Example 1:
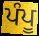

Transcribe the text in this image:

ਪੰਪੂ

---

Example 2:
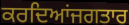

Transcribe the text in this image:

ਕਰਦਿਆਂਜਗਤਾਰ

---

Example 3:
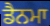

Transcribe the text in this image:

ਡੈਨਮਾ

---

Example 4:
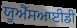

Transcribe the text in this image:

ਯੂਐੱਸਆਈਡੀ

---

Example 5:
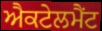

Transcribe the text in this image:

ਐਕਟੇਲਮੈਂਟ